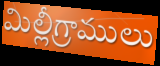
మిల్లీగ్రాములు